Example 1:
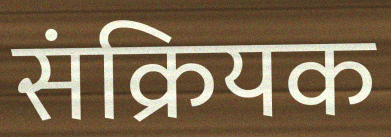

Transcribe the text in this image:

संक्रियक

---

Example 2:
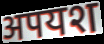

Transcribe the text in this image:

अपयश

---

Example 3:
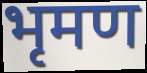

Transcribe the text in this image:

भृमण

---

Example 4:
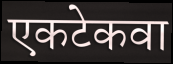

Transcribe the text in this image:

एकटेकवा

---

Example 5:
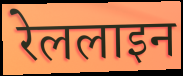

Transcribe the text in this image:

रेललाइन